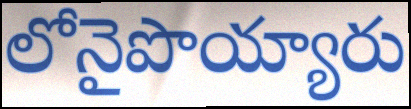
లోనైపొయ్యారు